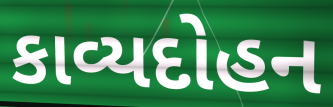
કાવ્યદોહન